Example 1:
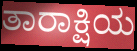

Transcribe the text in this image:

ತಾರಾಕ್ಷಿಯ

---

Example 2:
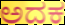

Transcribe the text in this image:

ಅದಕ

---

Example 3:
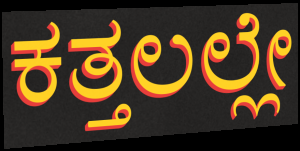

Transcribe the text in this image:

ಕತ್ತಲಲ್ಲೇ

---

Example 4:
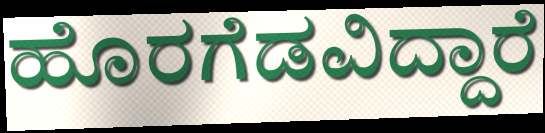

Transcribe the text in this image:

ಹೊರಗೆಡವಿದ್ದಾರೆ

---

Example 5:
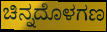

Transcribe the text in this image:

ಚಿನ್ನದೊಳಗಣ